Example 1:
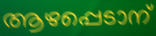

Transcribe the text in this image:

ആഴപ്പെടാന്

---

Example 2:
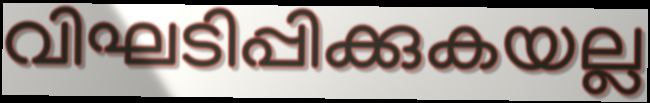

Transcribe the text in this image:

വിഘടിപ്പിക്കുകയല്ല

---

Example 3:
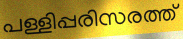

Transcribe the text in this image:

പള്ളിപ്പരിസരത്ത്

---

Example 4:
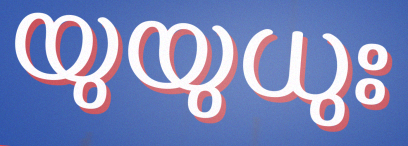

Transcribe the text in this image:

യുയുധുഃ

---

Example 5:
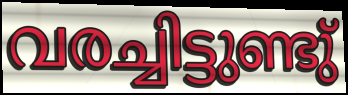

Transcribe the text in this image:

വരച്ചിട്ടുണ്ടു്